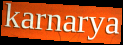
karnarya